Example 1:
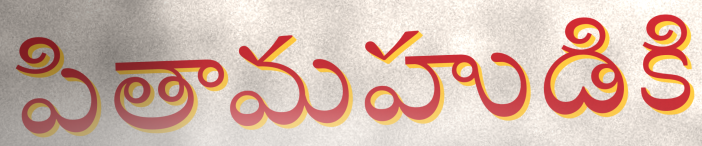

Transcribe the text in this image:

పితామహుడికి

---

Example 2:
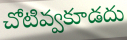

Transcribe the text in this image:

చోటివ్వకూడదు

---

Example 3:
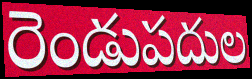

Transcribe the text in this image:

రెండుపదుల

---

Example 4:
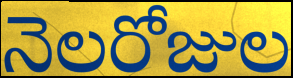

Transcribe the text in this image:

నెలరోజుల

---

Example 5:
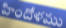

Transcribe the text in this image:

హిందోళము